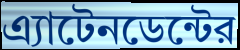
এ্যাটেনডেন্টের